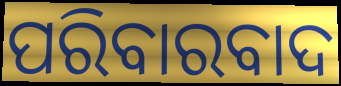
ପରିବାରବାଦ